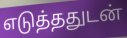
எடுத்ததுடன்